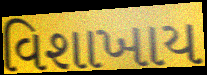
વિશાખાય